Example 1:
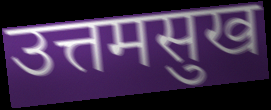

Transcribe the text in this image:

उत्तमसुख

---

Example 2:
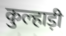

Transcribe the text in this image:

कुल्‍हाड़ी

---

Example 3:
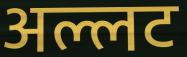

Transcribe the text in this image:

अल्लट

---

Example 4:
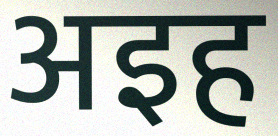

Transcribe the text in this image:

अइह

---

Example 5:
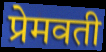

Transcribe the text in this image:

प्रेमवती